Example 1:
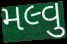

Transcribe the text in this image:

મલ્વુ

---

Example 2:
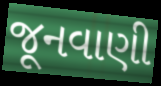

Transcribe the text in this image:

જૂનવાણી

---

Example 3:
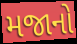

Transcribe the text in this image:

મજાનો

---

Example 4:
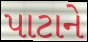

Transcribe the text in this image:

પાટાને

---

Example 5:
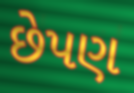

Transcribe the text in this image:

છેપણ